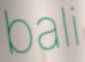
bali